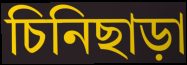
চিনিছাড়া